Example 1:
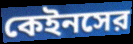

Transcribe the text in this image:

কেইনসের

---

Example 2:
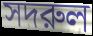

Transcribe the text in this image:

সদরুল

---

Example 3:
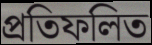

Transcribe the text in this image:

প্রতিফলিত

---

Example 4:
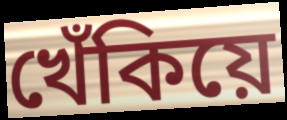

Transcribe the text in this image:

খেঁকিয়ে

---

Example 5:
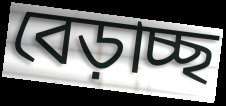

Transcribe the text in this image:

বেড়াচ্ছ